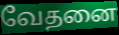
வேதனை